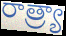
రాత్ర్యా